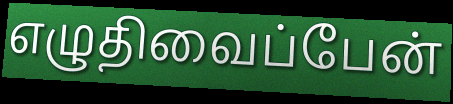
எழுதிவைப்பேன்